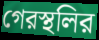
গেরস্থলির